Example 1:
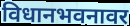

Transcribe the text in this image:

विधानभवनावर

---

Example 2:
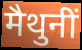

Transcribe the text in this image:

मैथुनीं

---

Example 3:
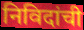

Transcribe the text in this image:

निविदांची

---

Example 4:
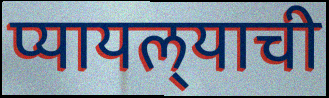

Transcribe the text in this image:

प्यायल्याची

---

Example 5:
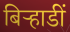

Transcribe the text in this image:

बिर्‍हाडीं